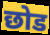
छोड